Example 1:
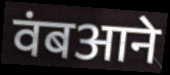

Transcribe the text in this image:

वंबआने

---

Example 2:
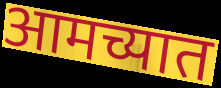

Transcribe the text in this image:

आमच्यात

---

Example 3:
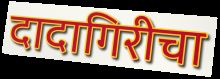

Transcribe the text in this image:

दादागिरीचा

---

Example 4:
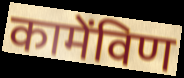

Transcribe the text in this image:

कामेंविण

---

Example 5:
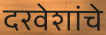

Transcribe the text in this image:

दरवेशांचे